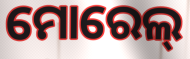
ମୋରେଲ୍